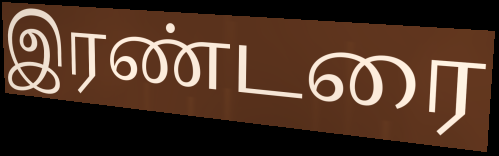
இரண்டரை